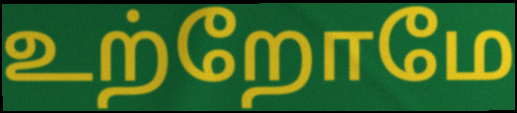
உற்றோமே